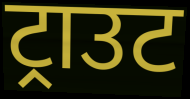
ट्राउट